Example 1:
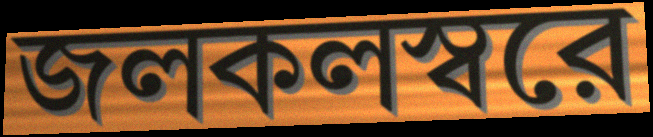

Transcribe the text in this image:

জলকলস্বরে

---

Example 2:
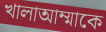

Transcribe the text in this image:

খালাআম্মাকে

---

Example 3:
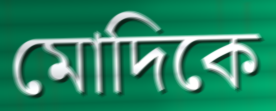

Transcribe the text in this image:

মোদিকে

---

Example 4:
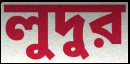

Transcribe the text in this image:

লুদুর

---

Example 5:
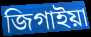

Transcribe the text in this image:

জিগাইয়া